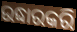
ଉଦ୍ଧାରକରି